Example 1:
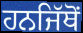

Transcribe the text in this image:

ਹਨਜਿੱਥੋਂ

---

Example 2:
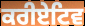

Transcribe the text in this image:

ਕਰੀਏਟਿਵ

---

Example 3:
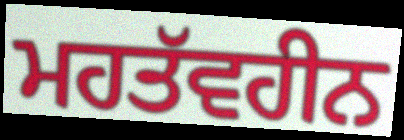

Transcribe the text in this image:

ਮਹਤੱਵਹੀਨ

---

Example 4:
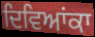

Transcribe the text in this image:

ਦਿਵਿਆਂਕਾ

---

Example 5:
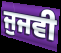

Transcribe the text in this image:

ਜੁਜਵੀ